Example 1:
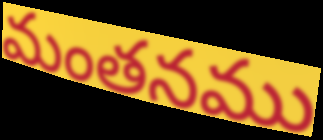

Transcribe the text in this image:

మంతనము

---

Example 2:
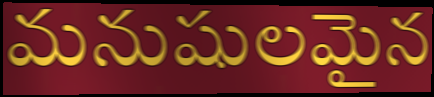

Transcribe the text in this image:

మనుషులమైన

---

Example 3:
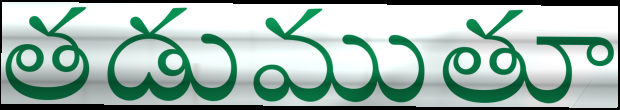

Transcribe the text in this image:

తడుముతూ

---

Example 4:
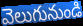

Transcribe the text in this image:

వెలుగునుండి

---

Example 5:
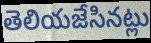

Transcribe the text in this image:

తెలియజేసినట్లు